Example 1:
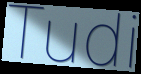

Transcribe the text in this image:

Tudi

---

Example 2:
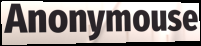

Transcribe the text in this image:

Anonymouse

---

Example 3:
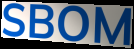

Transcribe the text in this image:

SBOM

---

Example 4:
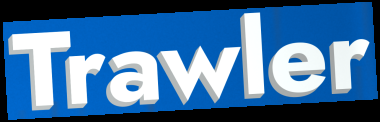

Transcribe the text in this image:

Trawler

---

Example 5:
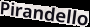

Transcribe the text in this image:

Pirandello